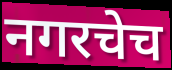
नगरचेच